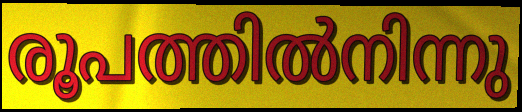
രൂപത്തിൽനിന്നു